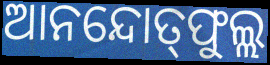
ଆନନ୍ଦୋତ୍‍ଫୁଲ୍ଲ